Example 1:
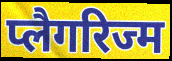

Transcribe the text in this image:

प्लैगरिज्म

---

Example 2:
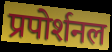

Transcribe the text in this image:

प्रपोर्शनल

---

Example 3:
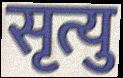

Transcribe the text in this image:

सृत्यु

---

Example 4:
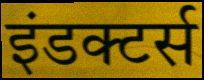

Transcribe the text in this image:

इंडक्टर्स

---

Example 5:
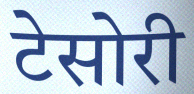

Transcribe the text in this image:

टेसोरी